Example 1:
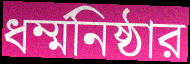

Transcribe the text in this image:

ধর্ম্মনিষ্ঠার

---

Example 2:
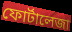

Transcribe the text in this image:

ফোর্টালেজা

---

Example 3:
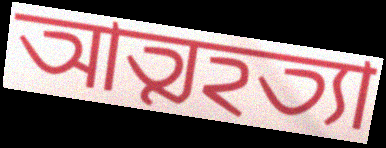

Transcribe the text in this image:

আত্মহত্যা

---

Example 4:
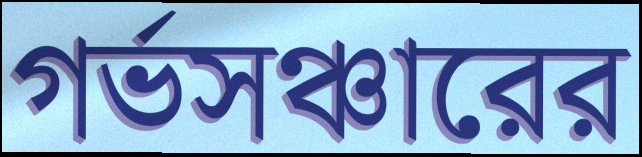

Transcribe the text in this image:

গর্ভসঞ্চারের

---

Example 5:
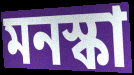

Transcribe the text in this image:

মনস্কা